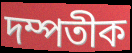
দম্পতীক